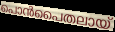
പൊൻപൈതലായ്